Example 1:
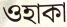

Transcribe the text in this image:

ওহাকা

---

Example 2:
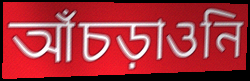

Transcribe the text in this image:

আঁচড়াওনি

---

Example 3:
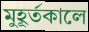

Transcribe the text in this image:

মুহূর্তকালে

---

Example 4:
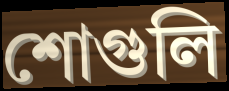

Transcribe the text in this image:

শোগুলি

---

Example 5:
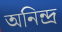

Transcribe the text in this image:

অনিন্দ্র